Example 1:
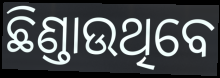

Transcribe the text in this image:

ଛିଣ୍ଡାଉଥିବେ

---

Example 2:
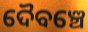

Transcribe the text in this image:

ଦୈବଞ୍ଚେ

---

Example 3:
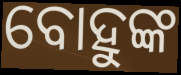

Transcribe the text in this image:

ବୋହୁଙ୍କ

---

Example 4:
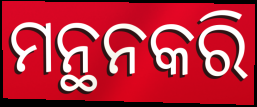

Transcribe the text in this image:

ମନ୍ଥନକରି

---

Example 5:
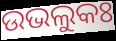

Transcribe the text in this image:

ଉଭଲୁକଃ